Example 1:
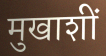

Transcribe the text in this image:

मुखाशीं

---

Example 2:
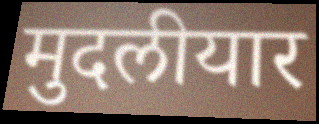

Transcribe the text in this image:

मुदलीयार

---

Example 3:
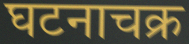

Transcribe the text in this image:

घटनाचक्र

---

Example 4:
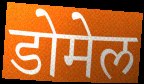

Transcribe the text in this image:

डोमेल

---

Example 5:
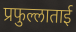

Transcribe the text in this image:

प्रफुल्लाताई